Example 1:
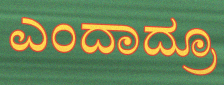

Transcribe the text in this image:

ಎಂದಾದ್ರೂ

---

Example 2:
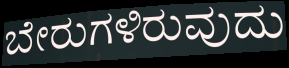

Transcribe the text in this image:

ಬೇರುಗಳಿರುವುದು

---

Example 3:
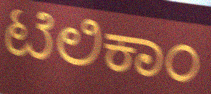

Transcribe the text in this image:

ಟೆಲಿಕಾಂ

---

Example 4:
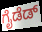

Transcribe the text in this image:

ಗೈಡೆಡ್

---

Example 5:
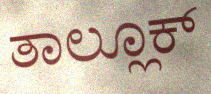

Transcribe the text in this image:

ತಾಲ್ಲೂಕ್